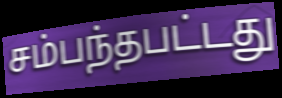
சம்பந்தபட்டது